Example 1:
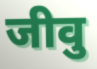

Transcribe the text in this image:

जीवु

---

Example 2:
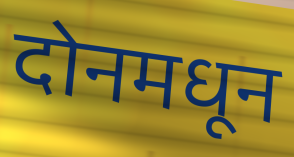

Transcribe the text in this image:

दोनमधून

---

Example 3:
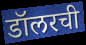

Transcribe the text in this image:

डॉलरची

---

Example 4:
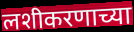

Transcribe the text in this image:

लशीकरणाच्या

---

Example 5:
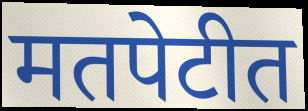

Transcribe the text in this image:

मतपेटीत